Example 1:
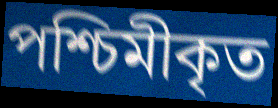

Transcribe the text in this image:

পশ্চিমীকৃত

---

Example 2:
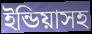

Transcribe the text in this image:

ইন্ডিয়াসহ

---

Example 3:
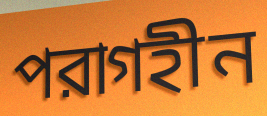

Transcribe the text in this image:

পরাগহীন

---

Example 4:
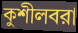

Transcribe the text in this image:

কুশীলবরা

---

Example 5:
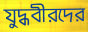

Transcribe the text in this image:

যুদ্ধবীরদের